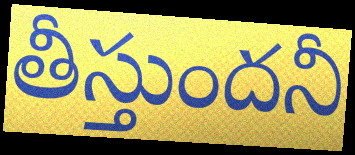
తీస్తుందనీ